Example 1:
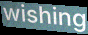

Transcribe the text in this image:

wishing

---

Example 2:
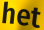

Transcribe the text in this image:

het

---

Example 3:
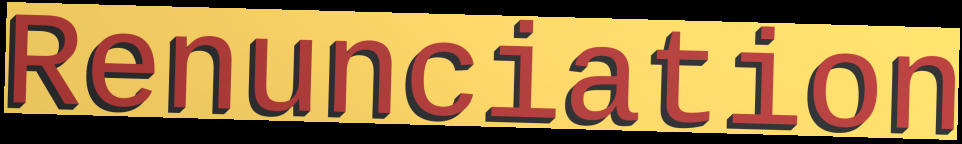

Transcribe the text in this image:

Renunciation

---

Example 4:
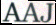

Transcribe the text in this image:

AAJ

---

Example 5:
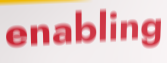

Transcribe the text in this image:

enabling